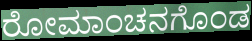
ರೋಮಾಂಚನಗೊಂಡ